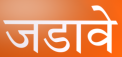
जडावे